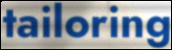
tailoring